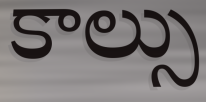
కాల్సు